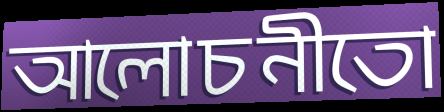
আলোচনীতো